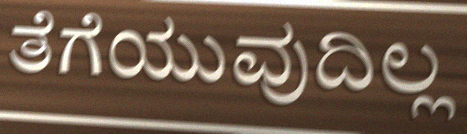
ತೆಗೆಯುವುದಿಲ್ಲ